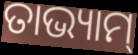
ତାଭ୍ୟାମ୍